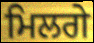
ਮਿਲਗੇ